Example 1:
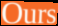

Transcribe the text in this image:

Ours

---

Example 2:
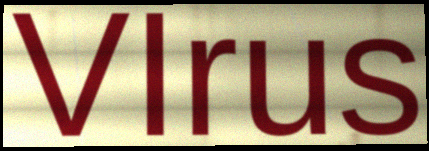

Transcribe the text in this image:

VIrus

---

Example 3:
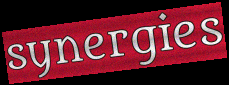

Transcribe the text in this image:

synergies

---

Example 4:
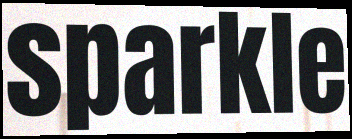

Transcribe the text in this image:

sparkle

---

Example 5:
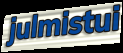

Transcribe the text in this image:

julmistui